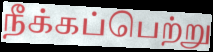
நீக்கப்பெற்று